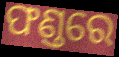
ଫଣ୍ଡରେ